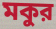
মকুর